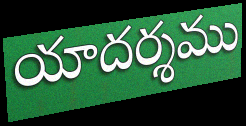
యాదర్శము